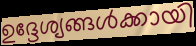
ഉദ്ദേശ്യങ്ങൾക്കായി